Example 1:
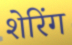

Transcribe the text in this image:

शेरिंग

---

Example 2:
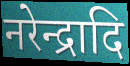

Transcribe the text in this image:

नरेन्द्रादि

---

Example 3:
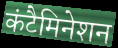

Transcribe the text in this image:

कंटैमिनेशन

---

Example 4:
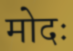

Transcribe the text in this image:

मोदः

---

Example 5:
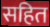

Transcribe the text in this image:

सहित